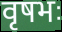
वृषभः